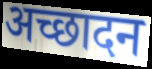
अच्छादन